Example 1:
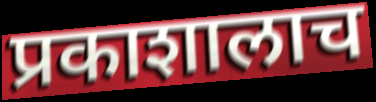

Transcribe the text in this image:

प्रकाशालाच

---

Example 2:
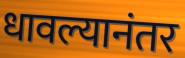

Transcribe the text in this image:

धावल्यानंतर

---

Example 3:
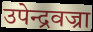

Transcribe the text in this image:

उपेन्द्रवज्रा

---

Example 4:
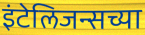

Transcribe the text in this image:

इंटेलिजन्सच्या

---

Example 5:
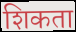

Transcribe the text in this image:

शिकता